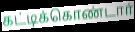
கட்டிக்கொண்டார்